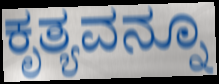
ಕೃತ್ಯವನ್ನೂ